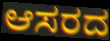
ಆಸರದ